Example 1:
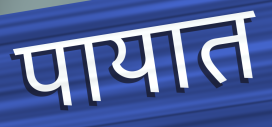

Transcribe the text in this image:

पायात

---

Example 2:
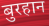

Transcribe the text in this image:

बुरहान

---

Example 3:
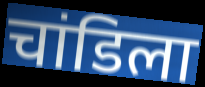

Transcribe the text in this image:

चांडिला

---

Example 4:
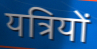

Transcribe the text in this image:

यत्रियों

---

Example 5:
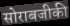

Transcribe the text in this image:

सोराबजीकी